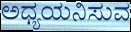
ಅಧ್ಯಯನಿಸುವ